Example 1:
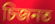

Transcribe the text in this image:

চিজনত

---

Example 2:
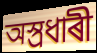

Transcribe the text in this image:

অস্ত্ৰধাৰী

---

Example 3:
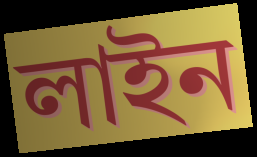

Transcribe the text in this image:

লাইন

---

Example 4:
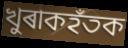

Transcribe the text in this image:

খুৰাকহঁতক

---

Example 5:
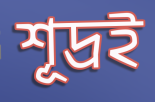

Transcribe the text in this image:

শূদ্ৰই